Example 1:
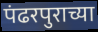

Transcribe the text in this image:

पंढरपुराच्या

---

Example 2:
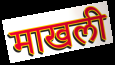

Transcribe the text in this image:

माखली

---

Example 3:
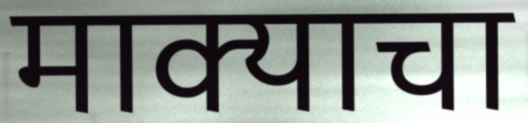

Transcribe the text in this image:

माक्याचा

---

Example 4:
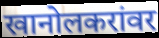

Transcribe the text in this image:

खानोलकरांवर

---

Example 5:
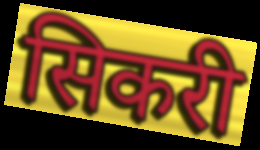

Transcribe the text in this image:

सिकरी